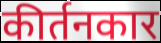
कीर्तनकार